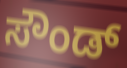
ಸೌಂಡ್